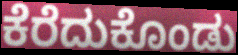
ಕೆರೆದುಕೊಂಡು